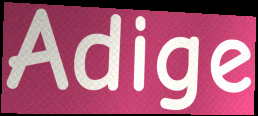
Adige